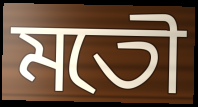
মতৌ